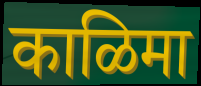
काळिमा